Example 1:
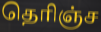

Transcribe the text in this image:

தெரிஞ்ச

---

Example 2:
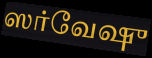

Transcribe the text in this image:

ஸர்வேஷு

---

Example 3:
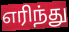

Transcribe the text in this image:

எரிந்து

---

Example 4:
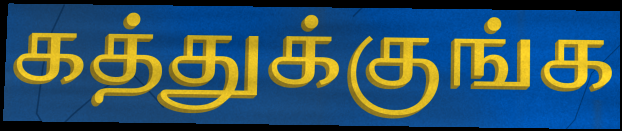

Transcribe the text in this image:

கத்துக்குங்க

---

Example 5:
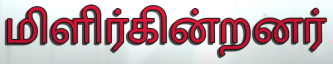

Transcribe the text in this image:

மிளிர்கின்றனர்